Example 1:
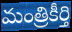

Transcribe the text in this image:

మంత్రికీర్తి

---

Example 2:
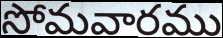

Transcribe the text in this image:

సోమవారము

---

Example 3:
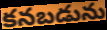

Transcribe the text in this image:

కనబడును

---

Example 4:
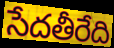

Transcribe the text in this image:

సేదతీరేది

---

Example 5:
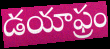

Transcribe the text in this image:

డయాఫ్రం